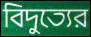
বিদুত্যের